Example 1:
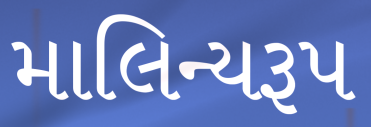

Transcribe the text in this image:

માલિન્યરૂપ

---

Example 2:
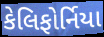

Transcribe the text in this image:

કેલિફોર્નિયા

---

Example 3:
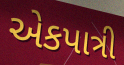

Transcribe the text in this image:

એકપાત્રી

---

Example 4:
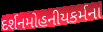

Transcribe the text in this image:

દર્શનમોહનીયકર્મના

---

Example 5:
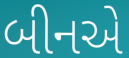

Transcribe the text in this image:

બીનએ